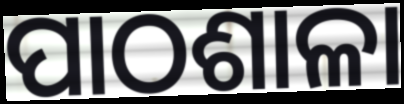
ପାଠଶାଳା